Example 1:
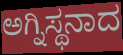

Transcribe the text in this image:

ಅಗ್ನಿಸ್ಥನಾದ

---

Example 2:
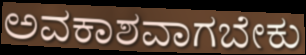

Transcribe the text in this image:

ಅವಕಾಶವಾಗಬೇಕು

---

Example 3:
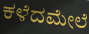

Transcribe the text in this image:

ಕಳೆದಮೇಲೆ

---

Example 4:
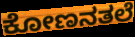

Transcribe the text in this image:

ಕೋಣನತಲೆ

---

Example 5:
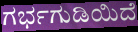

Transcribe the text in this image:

ಗರ್ಭಗುಡಿಯಿದೆ